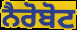
ਨੈਰੋਬੋਟ